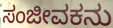
ಸಂಜೀವಕನು